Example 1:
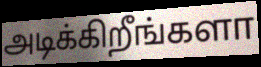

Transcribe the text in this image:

அடிக்கிறீங்களா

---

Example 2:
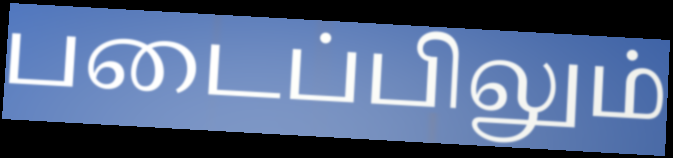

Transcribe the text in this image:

படைப்பிலும்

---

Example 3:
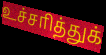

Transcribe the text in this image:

உச்சரித்துக்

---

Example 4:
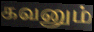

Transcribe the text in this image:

கவனும்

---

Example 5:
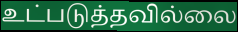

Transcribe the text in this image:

உட்படுத்தவில்லை